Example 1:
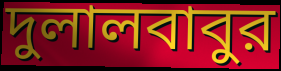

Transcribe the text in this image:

দুলালবাবুর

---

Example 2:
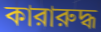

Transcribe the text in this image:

কারারুদ্ধ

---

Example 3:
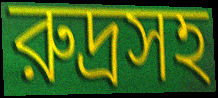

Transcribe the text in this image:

রুদ্রসহ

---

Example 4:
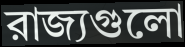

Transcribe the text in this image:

রাজ্যগুলো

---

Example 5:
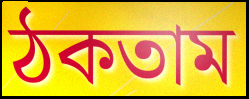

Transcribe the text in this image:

ঠকতাম